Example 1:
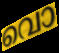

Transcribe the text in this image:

വൊ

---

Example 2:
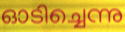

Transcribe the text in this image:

ഓടിച്ചെന്നു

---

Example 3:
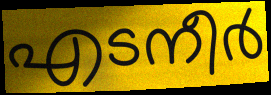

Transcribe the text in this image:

എടനീർ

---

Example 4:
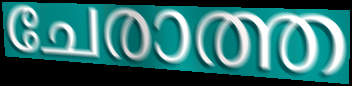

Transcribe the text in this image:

ചേരാത്ത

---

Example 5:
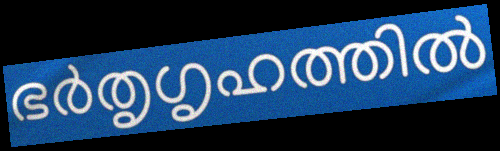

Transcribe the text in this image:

ഭർതൃഗൃഹത്തിൽ